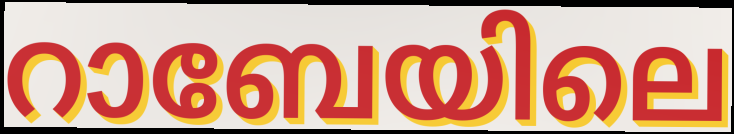
റാബേയിലെ